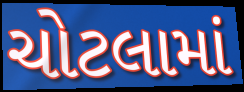
ચોટલામાં